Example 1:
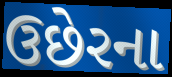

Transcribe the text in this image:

ઉછેરના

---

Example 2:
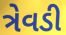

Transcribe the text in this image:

ત્રેવડી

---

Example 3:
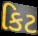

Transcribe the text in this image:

કિટ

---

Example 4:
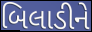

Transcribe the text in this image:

બિલાડીને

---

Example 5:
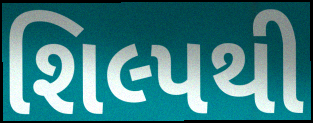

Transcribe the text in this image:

શિલ્પથી